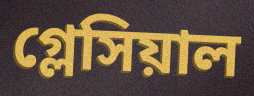
গ্লেসিয়াল